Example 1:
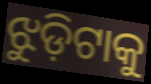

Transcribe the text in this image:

ଝୁଡ଼ିଟାକୁ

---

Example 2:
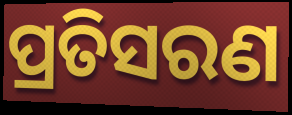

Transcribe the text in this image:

ପ୍ରତିସରଣ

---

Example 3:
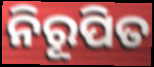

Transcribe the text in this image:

ନିରୂପିତ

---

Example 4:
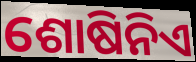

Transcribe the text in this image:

ଶୋଷିନିଏ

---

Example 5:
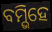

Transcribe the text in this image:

ବମ୍ଭିହେ